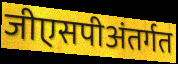
जीएसपीअंतर्गत